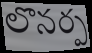
లొనర్ప